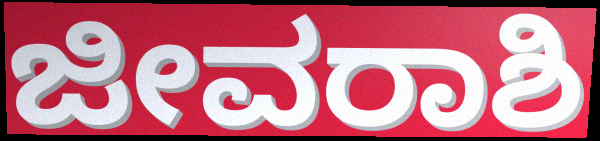
ಜೀವರಾಶಿ